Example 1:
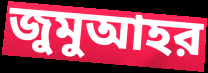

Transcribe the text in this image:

জুমুআহর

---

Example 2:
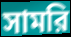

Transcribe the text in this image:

সামরি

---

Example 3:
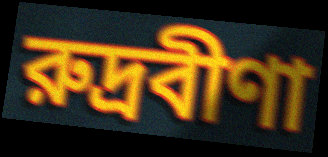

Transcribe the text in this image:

রুদ্রবীণা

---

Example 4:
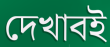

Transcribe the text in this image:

দেখাবই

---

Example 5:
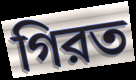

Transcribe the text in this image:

গিরত